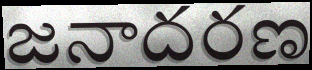
జనాదరణ